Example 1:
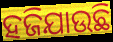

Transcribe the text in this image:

ହଜିଯାଉଛି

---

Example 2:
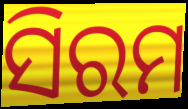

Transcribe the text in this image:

ସିରମ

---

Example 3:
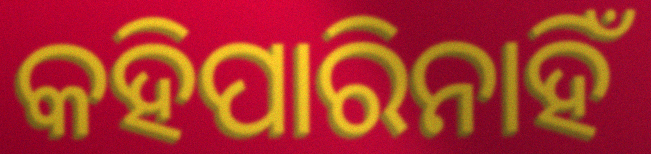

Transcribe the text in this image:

କହିପାରିନାହିଁ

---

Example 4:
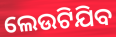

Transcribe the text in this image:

ଲେଉଟିଯିବ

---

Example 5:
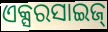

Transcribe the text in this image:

ଏକ୍ସରସାଇଜ୍